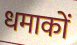
धमाकों